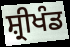
ਸ਼੍ਰੀਖੰਡ